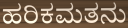
ಹರಿಕಮತನು